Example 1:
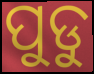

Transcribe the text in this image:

ପୁଡୁ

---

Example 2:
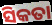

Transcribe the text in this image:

ସିକତା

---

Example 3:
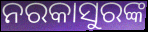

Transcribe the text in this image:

ନରକାସୁରଙ୍କ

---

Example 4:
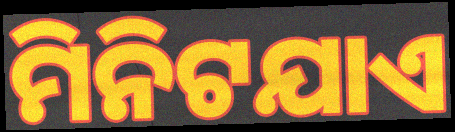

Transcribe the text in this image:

ମିନିଟଯାଏ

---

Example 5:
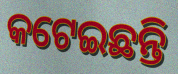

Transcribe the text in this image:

କଟେଇଛନ୍ତି